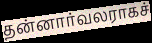
தன்னார்வலராகச்